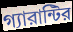
গ্যারান্টির